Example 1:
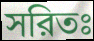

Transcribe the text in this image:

সরিতঃ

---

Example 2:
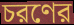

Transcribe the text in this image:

চরণের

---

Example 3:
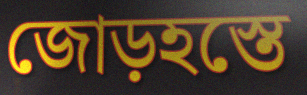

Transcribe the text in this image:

জোড়হস্তে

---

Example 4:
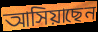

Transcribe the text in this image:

আসিয়াছেন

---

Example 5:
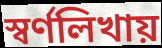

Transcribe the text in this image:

স্বর্ণলিখায়